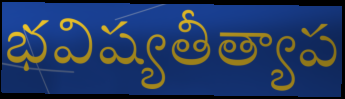
భవిష్యతీత్యాప